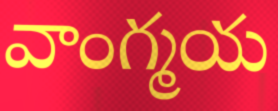
వాంగ్మయ